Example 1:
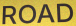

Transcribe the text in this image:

ROAD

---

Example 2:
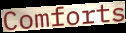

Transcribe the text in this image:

Comforts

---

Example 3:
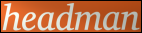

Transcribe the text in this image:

headman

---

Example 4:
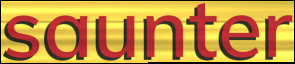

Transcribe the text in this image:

saunter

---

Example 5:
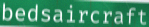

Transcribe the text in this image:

bedsaircraft